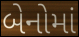
બેનોમાં